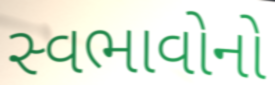
સ્વભાવોનો